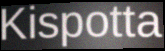
Kispotta